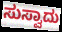
ಸುಸ್ವಾದು